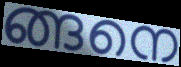
ങ്ങനെ